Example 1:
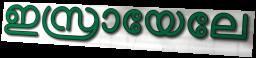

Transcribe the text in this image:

ഇസ്രായേലേ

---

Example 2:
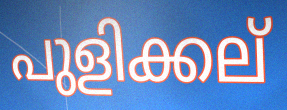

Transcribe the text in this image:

പുളിക്കല്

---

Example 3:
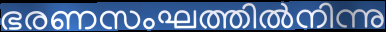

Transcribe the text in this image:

ഭരണസംഘത്തിൽനിന്നു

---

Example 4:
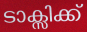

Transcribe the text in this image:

ടാക്സിക്ക്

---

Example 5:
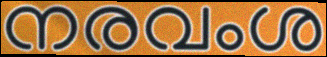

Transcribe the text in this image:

നരവംശ